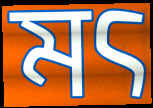
মৎ